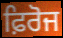
ਫ਼ਿਰੋਜ